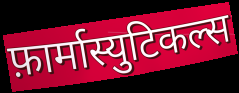
फ़ार्मास्युटिकल्स